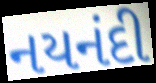
નયનંદી